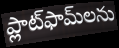
ప్లాట్‌ఫామ్‌లను